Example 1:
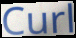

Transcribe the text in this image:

Curl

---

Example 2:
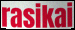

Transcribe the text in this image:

rasikai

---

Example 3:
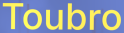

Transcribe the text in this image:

Toubro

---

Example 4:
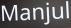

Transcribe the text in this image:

Manjul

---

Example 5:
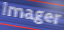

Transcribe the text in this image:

Imager